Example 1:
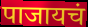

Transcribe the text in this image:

पाजायचं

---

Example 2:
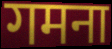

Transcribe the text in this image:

गमना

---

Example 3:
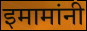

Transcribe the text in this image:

इमामांनी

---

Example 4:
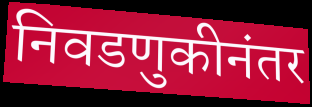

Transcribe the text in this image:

निवडणुकीनंतर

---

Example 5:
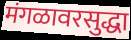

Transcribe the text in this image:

मंगळावरसुद्धा